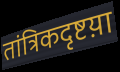
तांत्रिकदृष्टय़ा